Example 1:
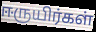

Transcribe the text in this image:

ஈருயிர்கள்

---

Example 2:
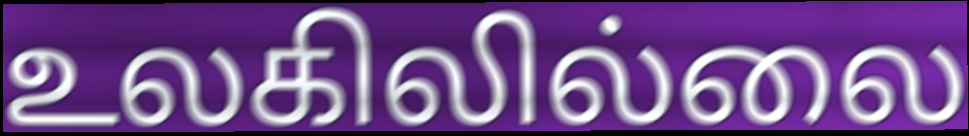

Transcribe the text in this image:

உலகிலில்லை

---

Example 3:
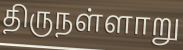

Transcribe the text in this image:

திருநள்ளாறு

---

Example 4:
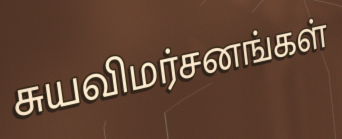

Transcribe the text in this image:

சுயவிமர்சனங்கள்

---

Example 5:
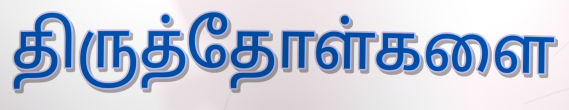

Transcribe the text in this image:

திருத்தோள்களை